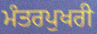
ਮੰਤਰਪੁਖਰੀ